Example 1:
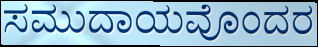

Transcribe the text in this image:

ಸಮುದಾಯವೊಂದರ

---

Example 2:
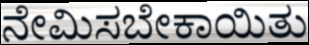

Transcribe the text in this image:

ನೇಮಿಸಬೇಕಾಯಿತು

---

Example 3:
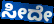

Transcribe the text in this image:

ಸೀದೇ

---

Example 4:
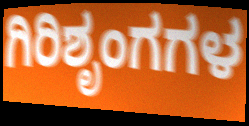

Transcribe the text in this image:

ಗಿರಿಶೃಂಗಗಳ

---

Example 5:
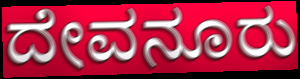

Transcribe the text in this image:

ದೇವನೂರು